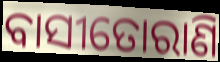
ବାସୀତୋରାଣି